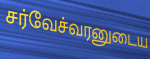
சர்வேச்வரனுடைய